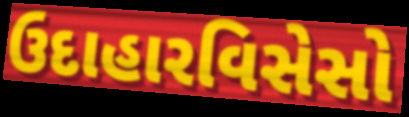
ઉદાહારવિસેસો